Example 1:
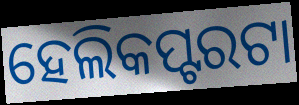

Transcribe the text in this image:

ହେଲିକପ୍ଟରଟା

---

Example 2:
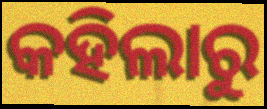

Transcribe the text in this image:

କହିଲାରୁ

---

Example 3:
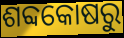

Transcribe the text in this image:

ଶବ୍ଦକୋଷରୁ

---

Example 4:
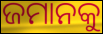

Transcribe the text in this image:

ଜମାନକୁ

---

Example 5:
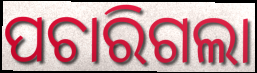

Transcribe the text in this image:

ପଚାରିଗଲା